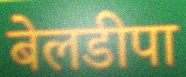
बेलडीपा